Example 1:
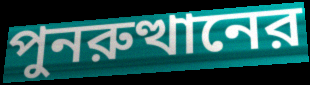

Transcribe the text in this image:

পুনরুত্থানের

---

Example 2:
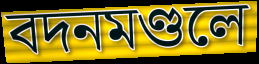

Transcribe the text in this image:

বদনমণ্ডলে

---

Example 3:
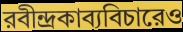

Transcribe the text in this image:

রবীন্দ্রকাব্যবিচারেও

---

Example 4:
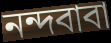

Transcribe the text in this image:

নন্দবাবা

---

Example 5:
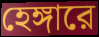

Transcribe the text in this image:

হেঙ্গারে